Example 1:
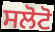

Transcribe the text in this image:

ਸਲੋਟੋ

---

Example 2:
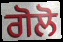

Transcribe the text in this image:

ਗੋਲੋ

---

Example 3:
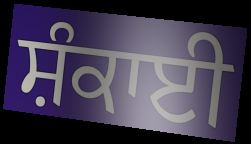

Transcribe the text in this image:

ਸ਼ੰਕਾਈ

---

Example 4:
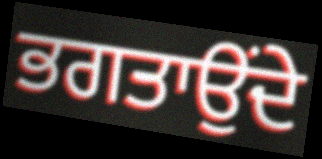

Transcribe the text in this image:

ਭਗਤਾਉਂਦੇ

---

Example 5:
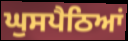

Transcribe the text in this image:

ਘੁਸਪੈਠਿਆਂ